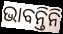
ଭାବନ୍ତିନି